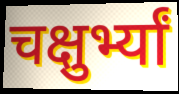
चक्षुर्भ्यां